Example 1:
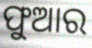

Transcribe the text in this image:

ଫୁଆର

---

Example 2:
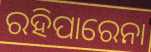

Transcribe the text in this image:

ରହିପାରେନା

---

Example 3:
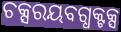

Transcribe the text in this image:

ଚକ୍ସରୟବଗ୍ଧକ୍ଟକ୍ସ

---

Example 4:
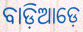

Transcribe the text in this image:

ବାଡ଼ିଆଡ଼େ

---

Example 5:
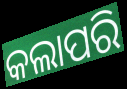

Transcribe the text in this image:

କଲାପରି